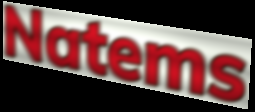
Natems